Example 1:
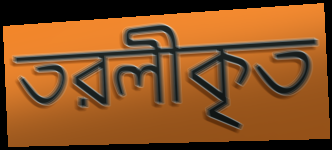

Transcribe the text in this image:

তরলীকৃত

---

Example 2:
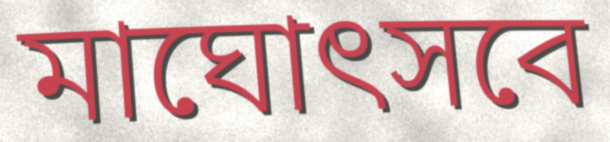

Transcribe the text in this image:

মাঘোৎসবে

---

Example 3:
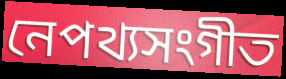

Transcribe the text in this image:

নেপথ্যসংগীত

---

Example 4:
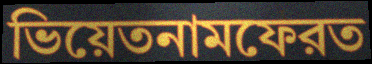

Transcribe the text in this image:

ভিয়েতনামফেরত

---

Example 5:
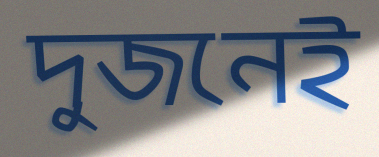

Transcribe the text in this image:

দুজনেই